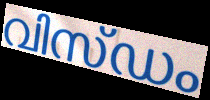
വിസ്ഡം